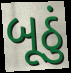
બૂઠું